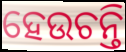
ହେଉଚନ୍ତି